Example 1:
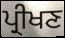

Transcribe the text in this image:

ਪ੍ਰੀਖਣ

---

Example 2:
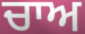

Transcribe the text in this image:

ਚਾਅ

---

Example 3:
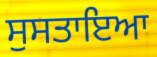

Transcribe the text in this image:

ਸੁਸਤਾਇਆ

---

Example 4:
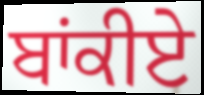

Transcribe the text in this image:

ਬਾਂਕੀਏ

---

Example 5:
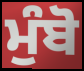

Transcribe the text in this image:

ਮੁੰਬੋ